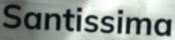
Santissima